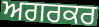
ਅਗਰਕਰ